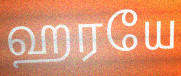
ஹரயே